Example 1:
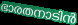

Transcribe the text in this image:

ഭാരതനാടിൻ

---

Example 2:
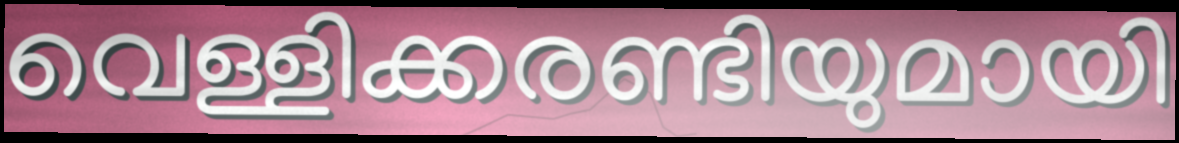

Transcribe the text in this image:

വെള്ളിക്കരണ്ടിയുമായി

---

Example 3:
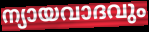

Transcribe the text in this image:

ന്യായവാദവും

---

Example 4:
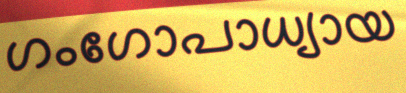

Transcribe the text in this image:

ഗംഗോപാധ്യായ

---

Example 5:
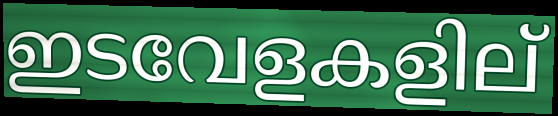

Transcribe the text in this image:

ഇടവേളകളില്